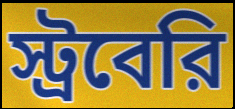
স্ট্রবেরি